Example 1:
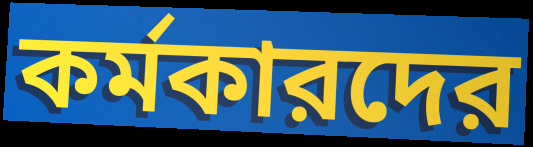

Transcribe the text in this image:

কর্মকারদের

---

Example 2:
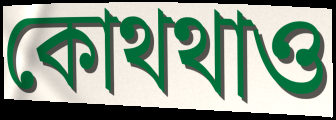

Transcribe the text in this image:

কোথথাও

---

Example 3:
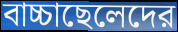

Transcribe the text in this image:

বাচ্চাছেলেদের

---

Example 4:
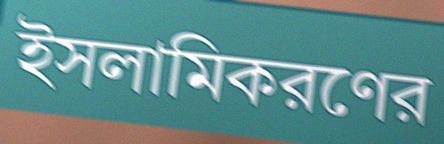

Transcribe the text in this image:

ইসলামিকরণের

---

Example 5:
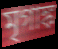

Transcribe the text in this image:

মৃগাঙ্ক